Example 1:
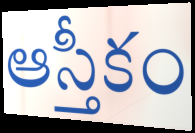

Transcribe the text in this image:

ఆస్తీకం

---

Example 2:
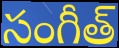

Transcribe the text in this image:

సంగీత్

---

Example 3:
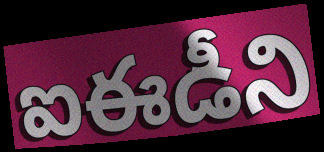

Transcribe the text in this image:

ఐఈడీని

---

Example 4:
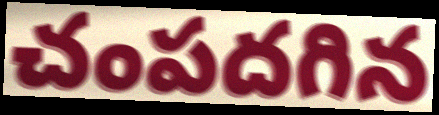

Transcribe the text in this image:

చంపదగిన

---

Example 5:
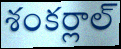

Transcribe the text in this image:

శంకర్లాల్